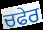
ਚਫੇਰ